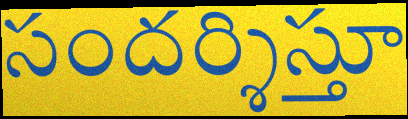
సందర్శిస్తూ